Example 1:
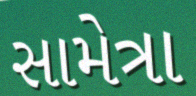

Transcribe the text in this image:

સામેત્રા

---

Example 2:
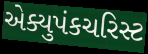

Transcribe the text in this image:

એક્યુપંકચરિસ્ટ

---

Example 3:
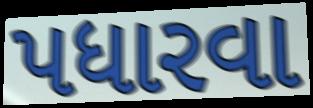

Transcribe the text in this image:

પધારવા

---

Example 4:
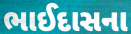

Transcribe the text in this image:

ભાઈદાસના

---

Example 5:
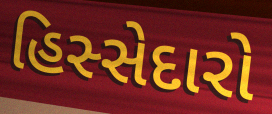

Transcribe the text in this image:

હિસ્સેદારો